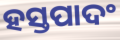
ହସ୍ତପାଦଂ